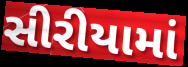
સીરીયામાં